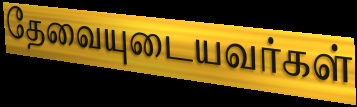
தேவையுடையவர்கள்